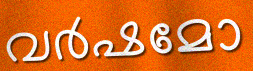
വർഷമോ